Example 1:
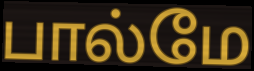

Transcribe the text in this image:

பால்மே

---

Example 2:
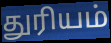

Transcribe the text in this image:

துரியம்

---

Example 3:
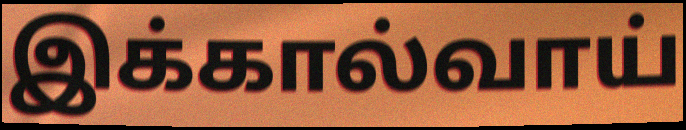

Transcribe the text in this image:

இக்கால்வாய்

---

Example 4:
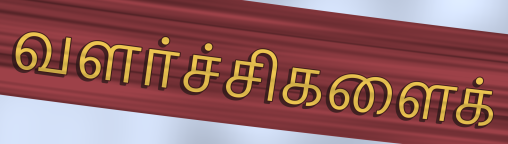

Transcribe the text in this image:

வளர்ச்சிகளைக்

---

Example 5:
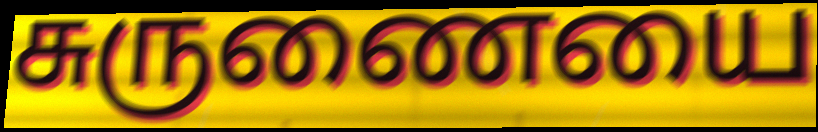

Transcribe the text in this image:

சுருணையை